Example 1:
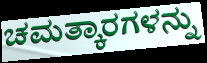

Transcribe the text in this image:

ಚಮತ್ಕಾರಗಳನ್ನು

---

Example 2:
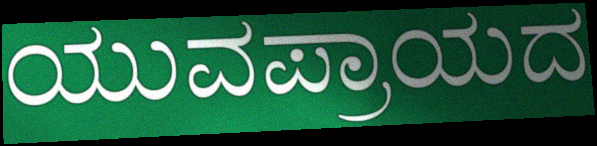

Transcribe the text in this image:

ಯುವಪ್ರಾಯದ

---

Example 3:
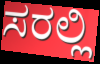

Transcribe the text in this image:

ಸರಲ್ಲಿ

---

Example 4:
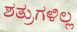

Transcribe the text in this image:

ಶತ್ರುಗಳಿಲ್ಲ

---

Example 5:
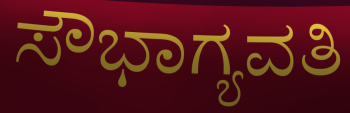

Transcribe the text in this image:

ಸೌಭಾಗ್ಯವತಿ